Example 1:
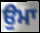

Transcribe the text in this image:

ਉਮਾ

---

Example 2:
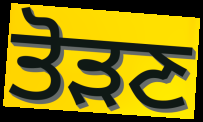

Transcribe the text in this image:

ਤੋੜਣ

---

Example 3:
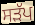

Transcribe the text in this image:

ਸੜੱਪ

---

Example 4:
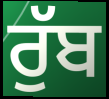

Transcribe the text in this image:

ਰੁੱਬ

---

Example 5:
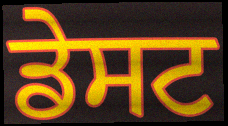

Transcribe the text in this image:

ਡੇਸਟ